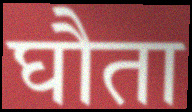
घौता